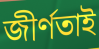
জীর্ণতাই